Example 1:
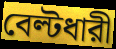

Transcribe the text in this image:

বেল্টধারী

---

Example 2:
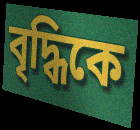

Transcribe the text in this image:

বৃদ্ধিকে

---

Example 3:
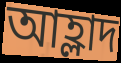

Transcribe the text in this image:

আহ্লাদ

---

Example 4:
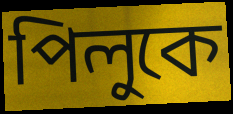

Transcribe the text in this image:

পিলুকে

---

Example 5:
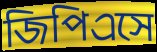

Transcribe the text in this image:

জিপিএসে